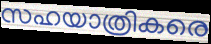
സഹയാത്രികരെ